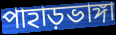
পাহাড়ভাঙ্গা